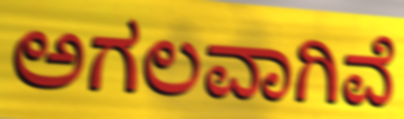
ಅಗಲವಾಗಿವೆ